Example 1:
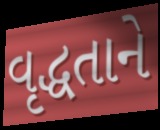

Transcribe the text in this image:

વૃદ્ધતાને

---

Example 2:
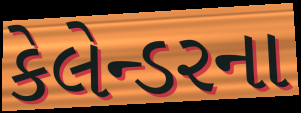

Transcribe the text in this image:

કેલેન્ડરના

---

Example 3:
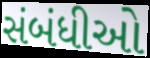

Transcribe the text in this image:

સંબંધીઓ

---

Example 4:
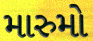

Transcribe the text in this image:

મારુમો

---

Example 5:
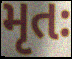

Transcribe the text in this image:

મૃતઃ